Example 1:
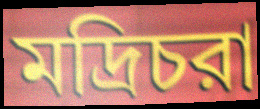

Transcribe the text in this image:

মদ্রিচরা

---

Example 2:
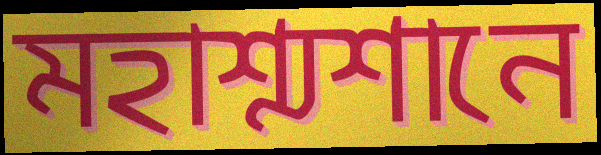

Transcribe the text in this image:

মহাশ্মশানে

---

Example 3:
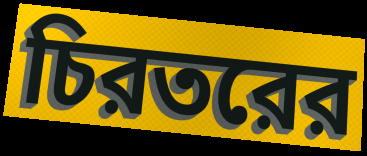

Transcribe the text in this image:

চিরতরের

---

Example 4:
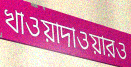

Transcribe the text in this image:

খাওয়াদাওয়ারও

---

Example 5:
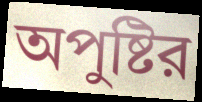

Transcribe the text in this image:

অপুষ্টির